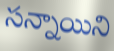
సన్నాయిని